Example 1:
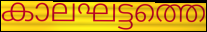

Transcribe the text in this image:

കാലഘട്ടത്തെ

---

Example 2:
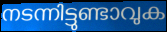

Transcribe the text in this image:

നടന്നിട്ടുണ്ടാവുക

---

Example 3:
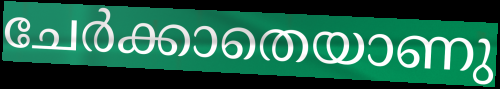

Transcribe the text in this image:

ചേർക്കാതെയാണു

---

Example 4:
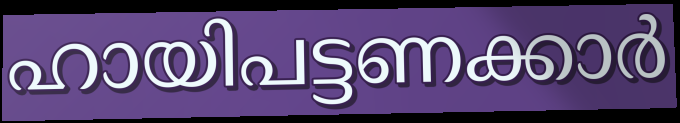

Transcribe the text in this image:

ഹായിപട്ടണക്കാർ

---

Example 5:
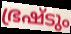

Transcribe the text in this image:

ഭ്രഷ്ടും